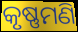
କୃଷ୍ଣମଣି